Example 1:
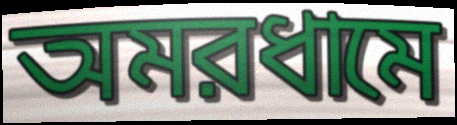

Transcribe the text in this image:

অমরধামে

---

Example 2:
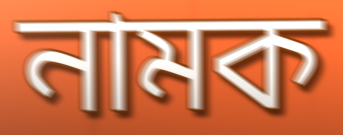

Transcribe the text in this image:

নামক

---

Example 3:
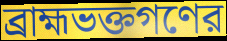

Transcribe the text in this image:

ব্রাহ্মভক্তগণের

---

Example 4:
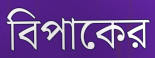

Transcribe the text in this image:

বিপাকের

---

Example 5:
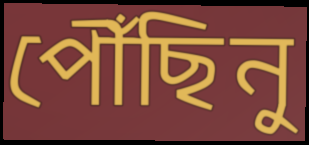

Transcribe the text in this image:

পৌঁছিনু